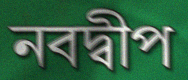
নবদ্বীপ